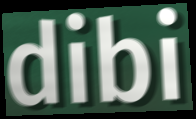
dibi